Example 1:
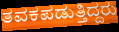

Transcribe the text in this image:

ತವಕಪಡುತ್ತಿದ್ದರು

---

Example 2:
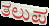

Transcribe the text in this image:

ತಲುಪ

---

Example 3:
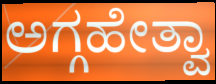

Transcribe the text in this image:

ಅಗ್ಗಹೇತ್ವಾ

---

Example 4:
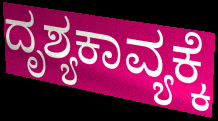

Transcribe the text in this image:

ದೃಶ್ಯಕಾವ್ಯಕ್ಕೆ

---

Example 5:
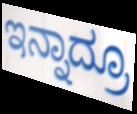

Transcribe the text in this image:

ಇನ್ನಾದ್ರೂ